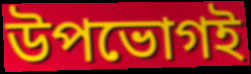
উপভোগই